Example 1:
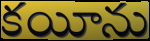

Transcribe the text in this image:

కయీను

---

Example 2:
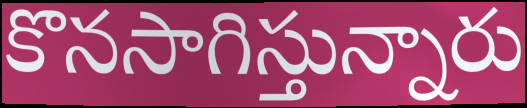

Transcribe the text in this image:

కొనసాగిస్తున్నారు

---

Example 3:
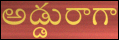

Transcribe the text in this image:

అడ్డురాగా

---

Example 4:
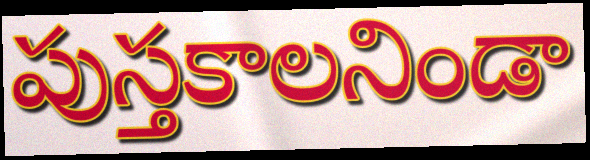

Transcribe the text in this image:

పుస్తకాలనిండా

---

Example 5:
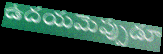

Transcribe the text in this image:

ఉదయమెప్పుడూ